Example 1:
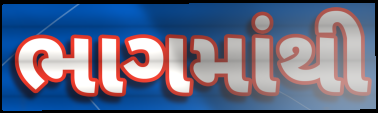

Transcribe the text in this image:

ભાગમાંથી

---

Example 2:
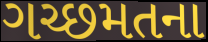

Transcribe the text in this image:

ગચ્છમતના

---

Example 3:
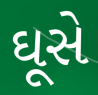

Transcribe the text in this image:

ઘૂસે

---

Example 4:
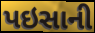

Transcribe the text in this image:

પઇસાની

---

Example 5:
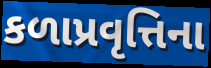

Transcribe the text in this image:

કળાપ્રવૃત્તિના